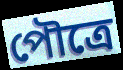
পৌত্রে